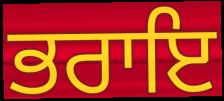
ਭਰਾਇ